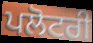
ਪਲੋਟਰੀ